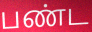
பண்ட